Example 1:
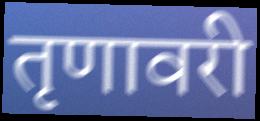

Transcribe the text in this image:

तृणावरी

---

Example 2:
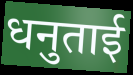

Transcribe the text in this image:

धनुताई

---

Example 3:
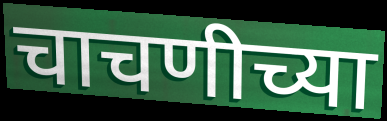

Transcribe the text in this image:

चाचणीच्या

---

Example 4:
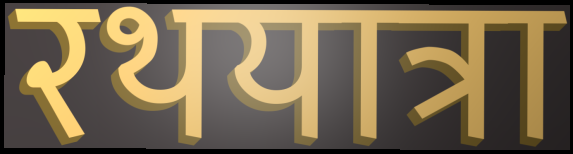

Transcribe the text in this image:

रथयात्रा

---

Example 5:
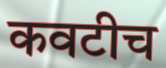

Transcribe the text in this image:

कवटीच